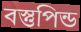
বস্তুপিন্ড